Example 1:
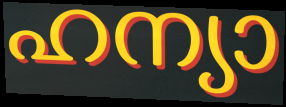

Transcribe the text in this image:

ഹന്യാ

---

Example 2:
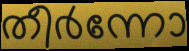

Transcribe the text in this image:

തീർന്നോ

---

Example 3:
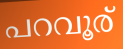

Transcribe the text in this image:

പറവൂര്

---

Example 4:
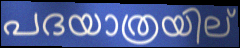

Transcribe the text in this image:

പദയാത്രയില്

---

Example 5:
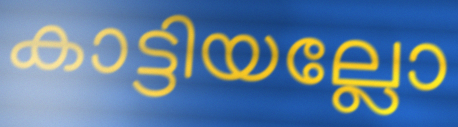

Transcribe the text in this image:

കാട്ടിയല്ലോ